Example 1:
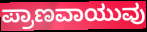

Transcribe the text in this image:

ಪ್ರಾಣವಾಯುವು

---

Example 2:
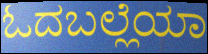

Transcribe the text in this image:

ಓದಬಲ್ಲೆಯಾ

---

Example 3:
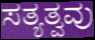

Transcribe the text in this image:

ಸತ್ಯತ್ವವು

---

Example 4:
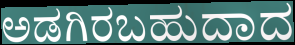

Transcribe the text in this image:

ಅಡಗಿರಬಹುದಾದ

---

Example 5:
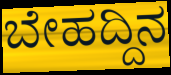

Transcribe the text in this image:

ಬೇಹದ್ದಿನ